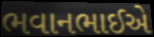
ભવાનભાઈએ